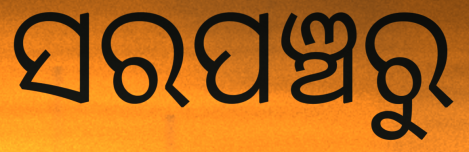
ସରପଞ୍ଚରୁ